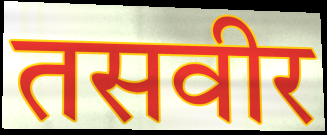
तसवीर